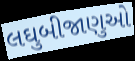
લઘુબીજાણુઓ